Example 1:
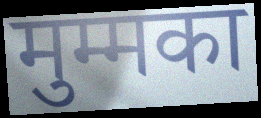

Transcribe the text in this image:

मुम्मका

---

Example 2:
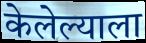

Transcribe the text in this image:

केलेल्याला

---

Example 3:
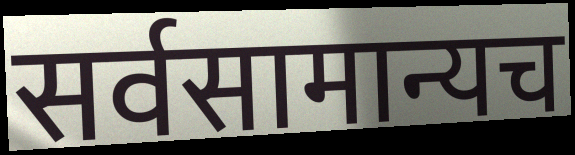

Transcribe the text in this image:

सर्वसामान्यच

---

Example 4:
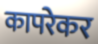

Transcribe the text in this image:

कापरेकर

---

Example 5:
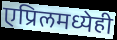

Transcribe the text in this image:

एप्रिलमध्येही